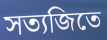
সত্যজিতে